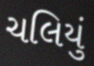
ચલિયું